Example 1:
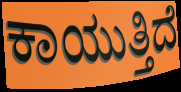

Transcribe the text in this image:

ಕಾಯುತ್ತಿದೆ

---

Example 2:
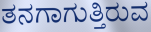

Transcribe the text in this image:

ತನಗಾಗುತ್ತಿರುವ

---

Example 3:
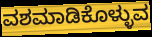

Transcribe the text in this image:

ವಶಮಾಡಿಕೊಳ್ಳುವ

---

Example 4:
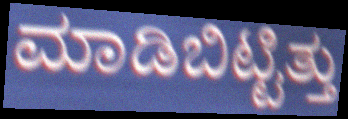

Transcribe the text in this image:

ಮಾಡಿಬಿಟ್ಟಿತ್ತು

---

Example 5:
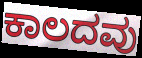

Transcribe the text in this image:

ಕಾಲದವು